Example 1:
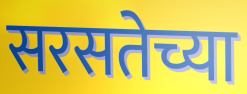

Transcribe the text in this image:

सरसतेच्या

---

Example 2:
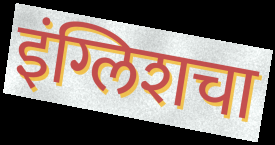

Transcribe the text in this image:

इंग्लिशचा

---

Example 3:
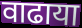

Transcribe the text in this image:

वाढाया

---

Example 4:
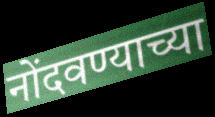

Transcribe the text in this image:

नोंदवण्याच्या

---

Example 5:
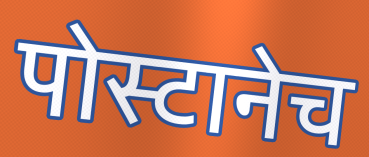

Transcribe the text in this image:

पोस्टानेच